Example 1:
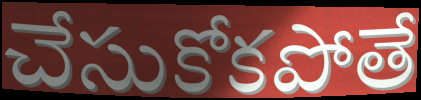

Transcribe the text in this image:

చేసుకోకపోతే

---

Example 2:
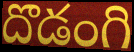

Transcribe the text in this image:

దొడంగి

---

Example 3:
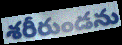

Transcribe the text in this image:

శరీరుండను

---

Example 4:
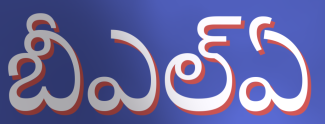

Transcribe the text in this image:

బీఎల్ఏ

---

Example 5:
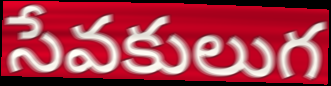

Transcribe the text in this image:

సేవకులుగ